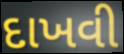
દાખવી